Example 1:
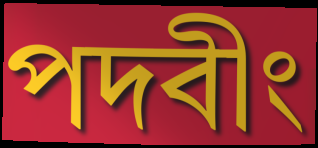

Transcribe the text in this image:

পদবীং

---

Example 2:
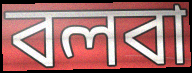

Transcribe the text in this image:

বলবা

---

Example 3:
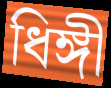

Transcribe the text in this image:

ধিঙ্গী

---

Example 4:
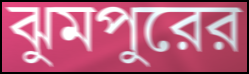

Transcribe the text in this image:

ঝুমপুরের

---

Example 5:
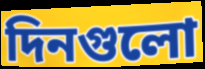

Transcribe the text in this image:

দিনগুলো